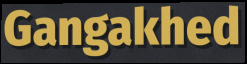
Gangakhed